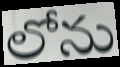
లోను